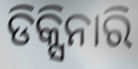
ଡିକ୍ସିନାରି